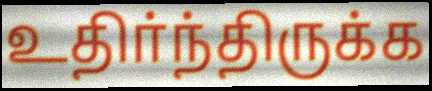
உதிர்ந்திருக்க